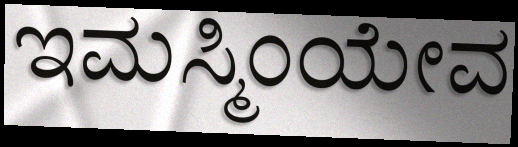
ಇಮಸ್ಮಿಂಯೇವ